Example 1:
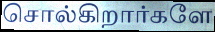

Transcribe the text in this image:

சொல்கிறார்களே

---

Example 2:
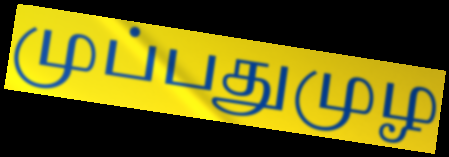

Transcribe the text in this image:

முப்பதுமுழ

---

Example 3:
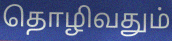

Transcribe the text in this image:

தொழிவதும்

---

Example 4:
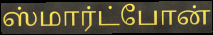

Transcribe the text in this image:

ஸ்மார்ட்போன்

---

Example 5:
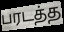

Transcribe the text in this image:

பரடத்த